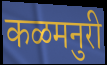
कळमनुरी